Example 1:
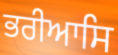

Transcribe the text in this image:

ਭਰੀਆਸਿ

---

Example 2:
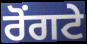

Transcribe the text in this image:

ਰੋੰਗਟੇ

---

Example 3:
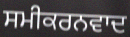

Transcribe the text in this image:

ਸਮੀਕਰਨਵਾਦ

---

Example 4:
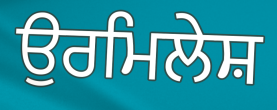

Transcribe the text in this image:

ਉਰਮਿਲੇਸ਼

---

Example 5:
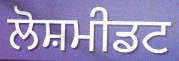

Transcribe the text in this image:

ਲੋਸ਼ਮੀਡਟ